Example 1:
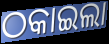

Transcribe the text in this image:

ଠକାଇଲା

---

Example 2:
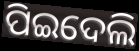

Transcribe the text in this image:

ପିଇଦେଲି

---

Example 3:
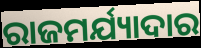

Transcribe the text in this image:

ରାଜମର୍ଯ୍ୟାଦାର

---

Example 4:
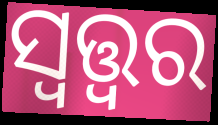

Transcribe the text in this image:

ସ୍ୱତ୍ତ୍ୱର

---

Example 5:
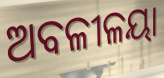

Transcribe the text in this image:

ଅବଳୀଳୟା